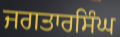
ਜਗਤਾਰਸਿੰਘ